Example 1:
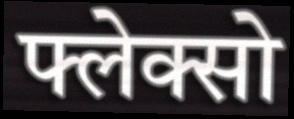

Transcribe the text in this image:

फ्लेक्सो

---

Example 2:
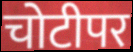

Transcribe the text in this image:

चोटीपर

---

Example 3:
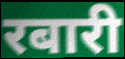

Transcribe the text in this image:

रबारी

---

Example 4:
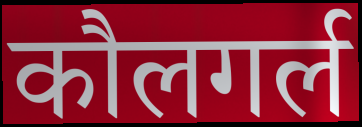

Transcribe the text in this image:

कौलगर्ल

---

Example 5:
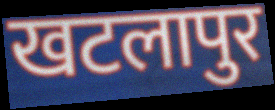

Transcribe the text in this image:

खटलापुर